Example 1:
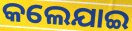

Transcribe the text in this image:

କଲେଯାଇ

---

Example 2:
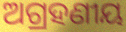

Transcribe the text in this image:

ଅଗ୍ରହଣୀୟ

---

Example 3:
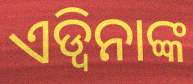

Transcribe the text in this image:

ଏଡ୍ୱିନାଙ୍କ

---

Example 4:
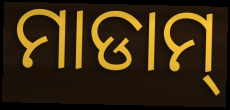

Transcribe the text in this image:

ମାଡାମ୍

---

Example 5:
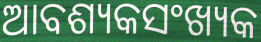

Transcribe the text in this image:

ଆବଶ୍ୟକସଂଖ୍ୟକ